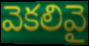
వెకలివై